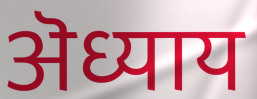
ऄध्याय